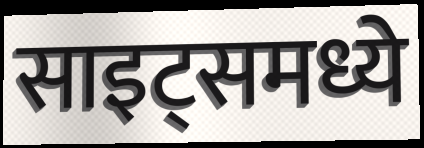
साइट्समध्ये